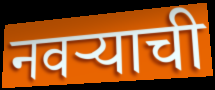
नवर्‍याची